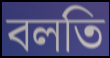
বলতি